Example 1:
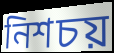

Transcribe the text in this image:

নিশচয়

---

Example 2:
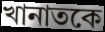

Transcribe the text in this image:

খানাতকে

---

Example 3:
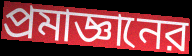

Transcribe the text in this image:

প্রমাজ্ঞানের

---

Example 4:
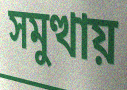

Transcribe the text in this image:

সমুত্থায়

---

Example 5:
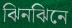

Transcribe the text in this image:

ঝিনঝিনে